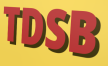
TDSB